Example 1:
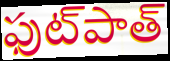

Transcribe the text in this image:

ఫుట్‌పాత్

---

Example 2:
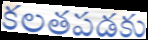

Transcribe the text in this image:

కలతపడకు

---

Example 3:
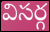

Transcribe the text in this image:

విసర్గ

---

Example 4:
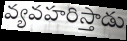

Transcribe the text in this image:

వ్యవహరిస్తాడు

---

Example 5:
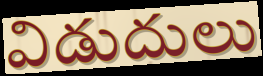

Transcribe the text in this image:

విడుదులు